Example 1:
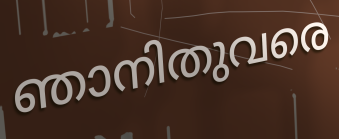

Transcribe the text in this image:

ഞാനിതുവരെ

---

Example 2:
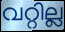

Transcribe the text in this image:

വറ്റില്ല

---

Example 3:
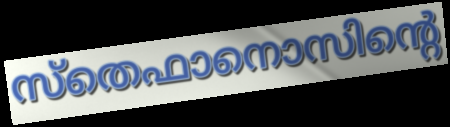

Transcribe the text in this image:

സ്തെഫാനൊസിന്റെ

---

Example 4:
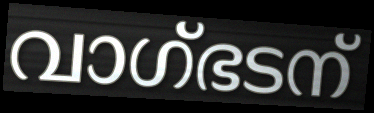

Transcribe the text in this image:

വാഗ്ഭടന്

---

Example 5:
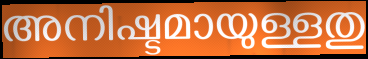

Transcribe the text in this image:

അനിഷ്ടമായുള്ളതു